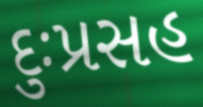
દુઃપ્રસહ